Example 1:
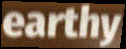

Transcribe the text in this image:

earthy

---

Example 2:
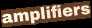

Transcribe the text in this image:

amplifiers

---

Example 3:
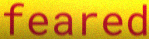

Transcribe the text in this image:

feared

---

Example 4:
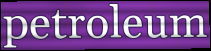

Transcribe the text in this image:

petroleum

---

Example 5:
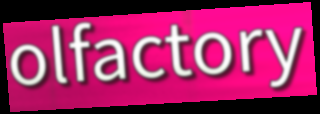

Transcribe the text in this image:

olfactory